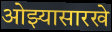
ओझ्यासारखे